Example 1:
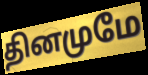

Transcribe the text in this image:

தினமுமே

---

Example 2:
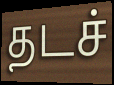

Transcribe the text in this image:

தடச்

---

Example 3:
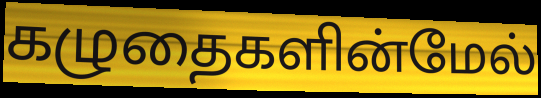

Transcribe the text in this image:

கழுதைகளின்மேல்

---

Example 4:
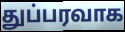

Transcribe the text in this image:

துப்பரவாக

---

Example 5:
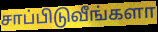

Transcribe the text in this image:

சாப்பிடுவீங்களா